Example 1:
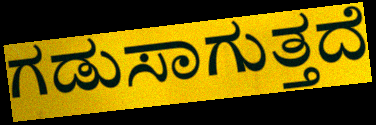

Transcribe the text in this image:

ಗಡುಸಾಗುತ್ತದೆ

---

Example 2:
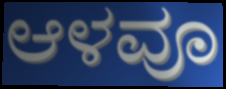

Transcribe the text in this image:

ಆಳವೂ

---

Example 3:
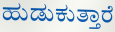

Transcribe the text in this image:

ಹುಡುಕುತ್ತಾರೆ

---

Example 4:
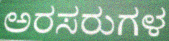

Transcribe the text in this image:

ಅರಸರುಗಳ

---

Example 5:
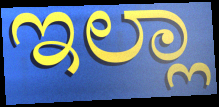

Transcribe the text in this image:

ಇಲ್ಲಾ